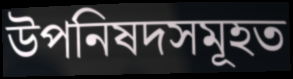
উপনিষদসমূহত